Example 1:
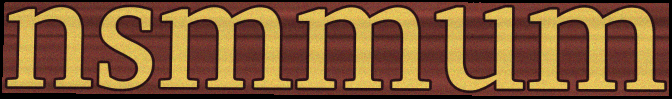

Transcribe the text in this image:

nsmmum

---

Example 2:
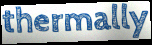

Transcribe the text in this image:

thermally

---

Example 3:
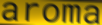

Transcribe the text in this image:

aroma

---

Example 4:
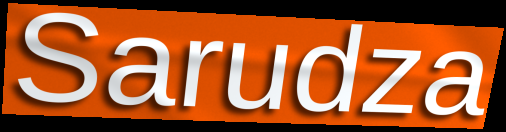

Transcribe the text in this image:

Sarudza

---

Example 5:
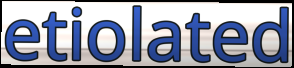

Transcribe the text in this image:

etiolated